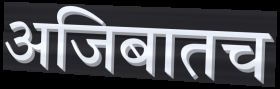
अजिबातच